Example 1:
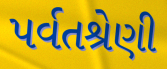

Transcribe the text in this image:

પર્વતશ્રેણી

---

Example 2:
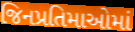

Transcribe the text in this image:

જિનપ્રતિમાઓમાં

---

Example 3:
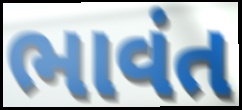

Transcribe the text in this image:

ભાવંત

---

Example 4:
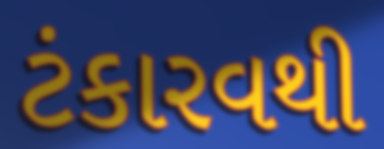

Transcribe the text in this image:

ટંકારવથી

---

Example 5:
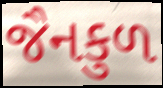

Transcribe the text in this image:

જૈનકુળ